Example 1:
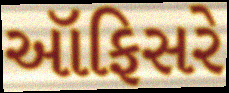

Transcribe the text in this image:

ઑફિસરે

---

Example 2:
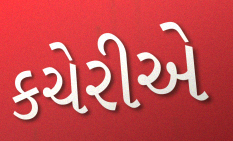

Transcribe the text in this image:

કચેરીએ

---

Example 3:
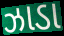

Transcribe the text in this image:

ઝાડા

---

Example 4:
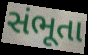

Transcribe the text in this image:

સંભૂતા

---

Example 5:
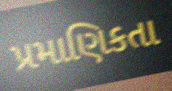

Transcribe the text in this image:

પ્રમાણિકતા